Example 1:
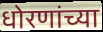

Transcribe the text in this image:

धोरणांच्या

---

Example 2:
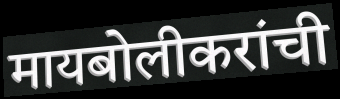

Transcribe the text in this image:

मायबोलीकरांची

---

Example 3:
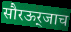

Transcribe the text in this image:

सौरऊर्जाच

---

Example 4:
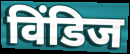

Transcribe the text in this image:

विंडिज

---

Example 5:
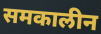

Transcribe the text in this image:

समकालीन